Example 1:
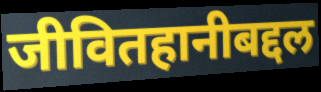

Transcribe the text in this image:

जीवितहानीबद्दल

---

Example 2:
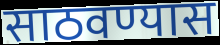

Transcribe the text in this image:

साठवण्यास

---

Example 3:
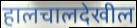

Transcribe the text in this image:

हालचालदेखील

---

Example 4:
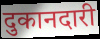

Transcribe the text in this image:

दुकानदारी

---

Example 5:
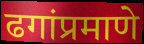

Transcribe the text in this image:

ढगांप्रमाणे